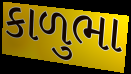
કાળુભા